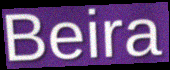
Beira